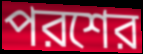
পরশের